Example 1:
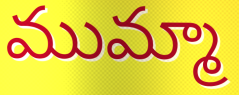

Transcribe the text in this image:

ముమ్మా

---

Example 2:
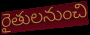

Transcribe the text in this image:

రైతులనుంచి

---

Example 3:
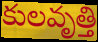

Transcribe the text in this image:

కులవృత్తి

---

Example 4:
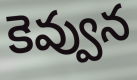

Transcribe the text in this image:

కెవ్వున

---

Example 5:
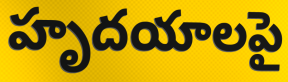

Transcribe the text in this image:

హృదయాలపై